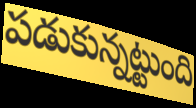
పడుకున్నట్టుంది